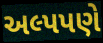
અલ્પપણે